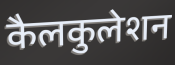
कैलकुलेशन